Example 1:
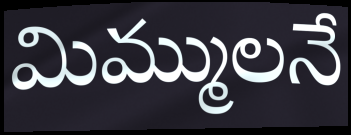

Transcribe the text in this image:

మిమ్ములనే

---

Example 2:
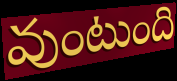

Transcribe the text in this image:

వుంటుంది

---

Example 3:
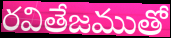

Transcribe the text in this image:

రవితేజముతో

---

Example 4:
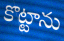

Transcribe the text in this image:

కొట్టాను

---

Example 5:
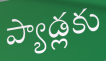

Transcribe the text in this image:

ప్యాడ్లకు